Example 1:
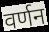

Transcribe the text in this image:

वर्णन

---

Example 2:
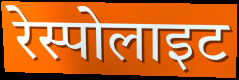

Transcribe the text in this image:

रेस्पोलाइट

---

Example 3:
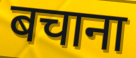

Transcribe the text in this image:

बचाना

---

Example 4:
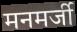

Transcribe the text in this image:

मनमर्जी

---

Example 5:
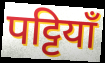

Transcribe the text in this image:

पट्टियाँ